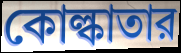
কোল্কাতার